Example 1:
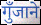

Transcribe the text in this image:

गुँजाने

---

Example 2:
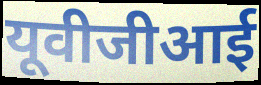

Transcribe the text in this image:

यूवीजीआई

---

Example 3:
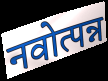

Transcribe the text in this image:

नवोत्पन्न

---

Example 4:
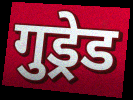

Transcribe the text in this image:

गुड्रेड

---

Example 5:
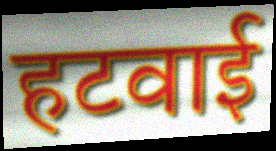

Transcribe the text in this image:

हटवाई